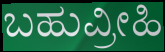
ಬಹುವ್ರೀಹಿ